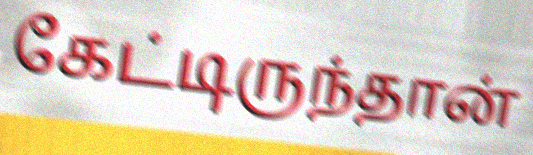
கேட்டிருந்தான்